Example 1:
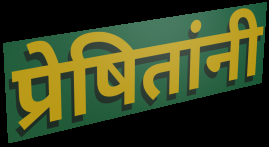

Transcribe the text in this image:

प्रेषितांनी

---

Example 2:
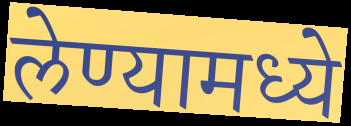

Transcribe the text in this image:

लेण्यामध्ये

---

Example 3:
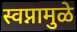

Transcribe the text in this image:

स्वप्नामुळे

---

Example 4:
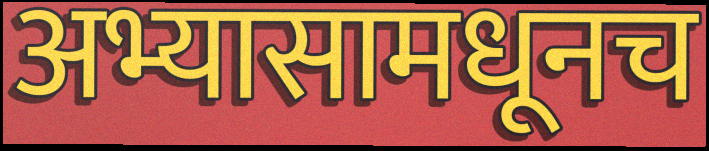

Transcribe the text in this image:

अभ्यासामधूनच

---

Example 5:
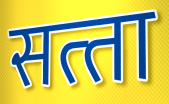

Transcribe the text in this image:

सत्‍ता